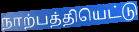
நாற்பத்தியெட்டு